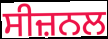
ਸੀਜ਼ਨਲ